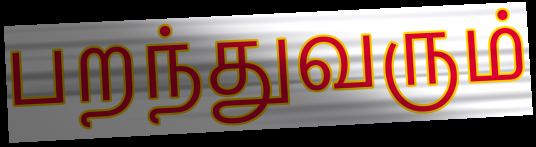
பறந்துவரும்